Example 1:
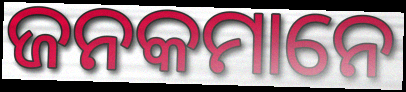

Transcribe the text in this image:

ଜନକମାନେ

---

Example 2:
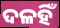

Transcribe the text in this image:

ଦଳହିଁ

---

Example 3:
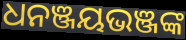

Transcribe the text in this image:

ଧନଞ୍ଜୟଭଞ୍ଜଙ୍କ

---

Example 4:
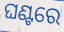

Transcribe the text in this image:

ଘଣ୍ଟରେ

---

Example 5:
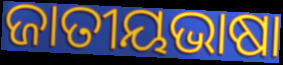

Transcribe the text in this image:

ଜାତୀୟଭାଷା